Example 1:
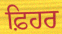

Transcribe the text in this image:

ਫ਼ਿਹਰ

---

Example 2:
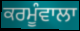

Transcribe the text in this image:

ਕਰਮੂੰਵਾਲਾ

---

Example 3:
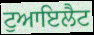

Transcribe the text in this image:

ਟੁਆਇਲੈਟ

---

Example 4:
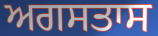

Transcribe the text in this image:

ਅਗਸਤਾਸ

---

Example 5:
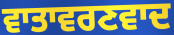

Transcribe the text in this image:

ਵਾਤਾਵਰਣਵਾਦ